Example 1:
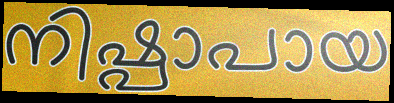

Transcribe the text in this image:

നിഷ്പാപായ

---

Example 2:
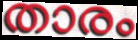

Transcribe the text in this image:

താരം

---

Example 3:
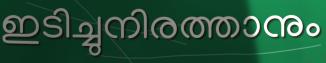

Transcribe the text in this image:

ഇടിച്ചുനിരത്താനും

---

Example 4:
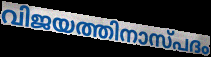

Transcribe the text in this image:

വിജയത്തിനാസ്പദം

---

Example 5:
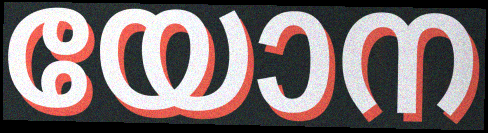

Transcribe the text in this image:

യോന